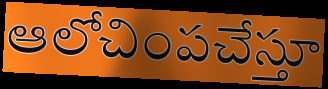
ఆలోచింపచేస్తూ